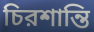
চিরশান্তি